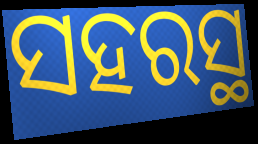
ସହରସ୍ଥ